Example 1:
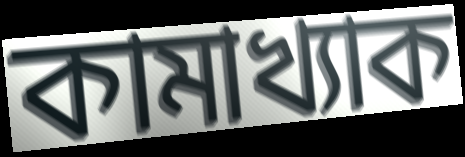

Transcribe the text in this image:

কামাখ্যাক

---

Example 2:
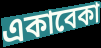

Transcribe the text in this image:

একাবেকা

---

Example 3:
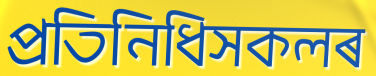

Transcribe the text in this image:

প্ৰতিনিধিসকলৰ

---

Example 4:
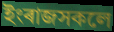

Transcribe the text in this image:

ইংৰাজসকলে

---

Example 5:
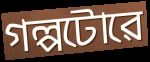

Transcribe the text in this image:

গল্পটোৱে